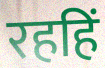
रहहिं